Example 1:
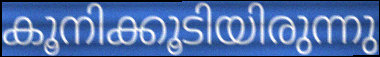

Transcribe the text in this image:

കൂനിക്കൂടിയിരുന്നു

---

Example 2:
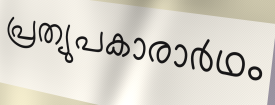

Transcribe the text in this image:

പ്രത്യുപകാരാർഥം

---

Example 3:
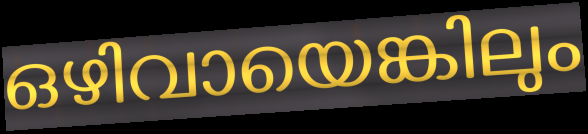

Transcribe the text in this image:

ഒഴിവായെങ്കിലും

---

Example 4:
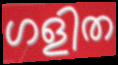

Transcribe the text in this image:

ഗളിത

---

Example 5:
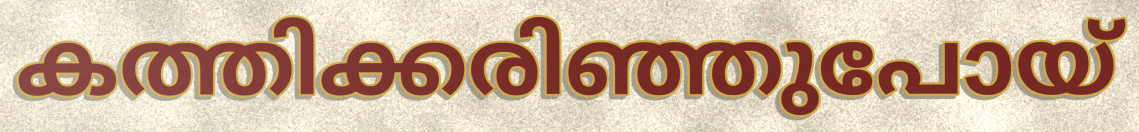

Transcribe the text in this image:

കത്തിക്കരിഞ്ഞുപോയ്